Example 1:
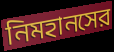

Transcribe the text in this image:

নিমহানসের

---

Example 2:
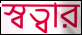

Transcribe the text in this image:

স্বত্বার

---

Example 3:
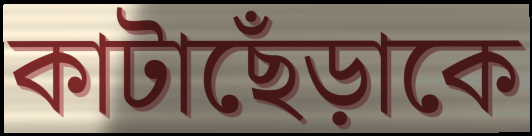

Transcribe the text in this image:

কাটাছেঁড়াকে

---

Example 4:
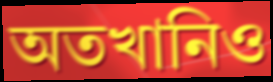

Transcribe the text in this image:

অতখানিও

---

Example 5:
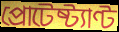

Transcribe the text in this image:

প্রোটেষ্ট্যাণ্ট